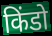
किंडो